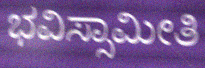
ಭವಿಸ್ಸಾಮೀತಿ